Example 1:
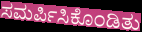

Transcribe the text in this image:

ಸಮರ್ಪಿಸಿಕೊಂಡಿತು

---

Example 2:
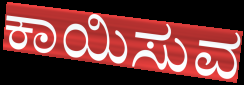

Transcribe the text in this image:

ಕಾಯಿಸುವ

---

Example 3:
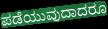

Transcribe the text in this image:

ಪಡೆಯುವುದಾದರೂ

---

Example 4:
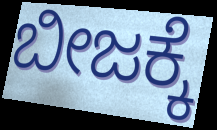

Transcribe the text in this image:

ಬೀಜಕ್ಕೆ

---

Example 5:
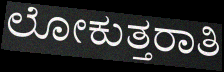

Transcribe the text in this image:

ಲೋಕುತ್ತರಾತಿ